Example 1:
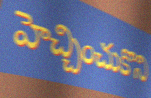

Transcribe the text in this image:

హెచ్చించుకొని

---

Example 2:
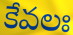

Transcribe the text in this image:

కేవలః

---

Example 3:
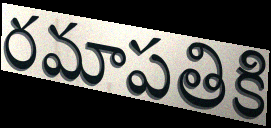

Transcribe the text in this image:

రమాపతికి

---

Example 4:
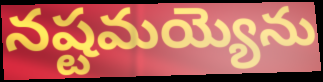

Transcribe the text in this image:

నష్టమయ్యెను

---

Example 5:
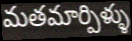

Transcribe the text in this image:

మతమార్పిళ్ళు